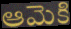
ఆమెకి